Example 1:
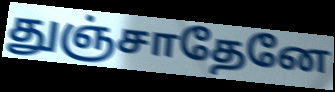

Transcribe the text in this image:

துஞ்சாதேனே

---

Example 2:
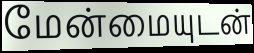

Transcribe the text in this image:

மேன்மையுடன்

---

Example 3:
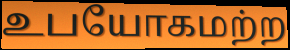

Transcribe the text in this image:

உபயோகமற்ற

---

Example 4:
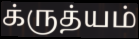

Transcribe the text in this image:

க்ருத்யம்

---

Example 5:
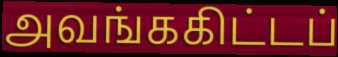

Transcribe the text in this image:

அவங்ககிட்டப்